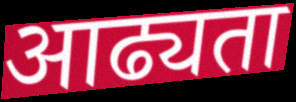
आढ्यता